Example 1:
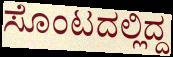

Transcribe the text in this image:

ಸೊಂಟದಲ್ಲಿದ್ದ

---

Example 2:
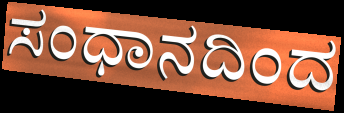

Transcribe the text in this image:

ಸಂಧಾನದಿಂದ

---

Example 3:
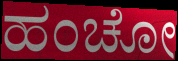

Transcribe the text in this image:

ಹಂಚೋ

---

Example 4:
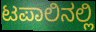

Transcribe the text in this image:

ಟಪಾಲಿನಲ್ಲಿ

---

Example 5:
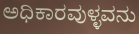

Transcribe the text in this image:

ಅಧಿಕಾರವುಳ್ಳವನು